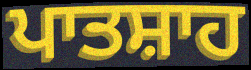
ਪਾਤਸ਼ਾਹ